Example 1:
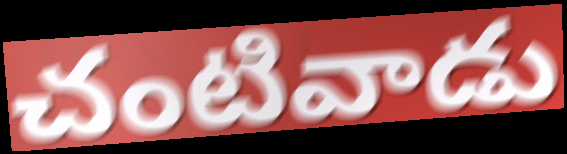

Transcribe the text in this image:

చంటివాడు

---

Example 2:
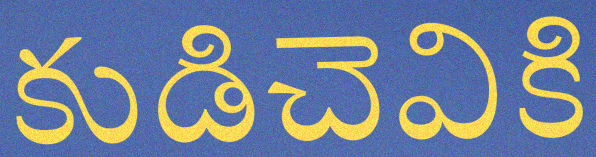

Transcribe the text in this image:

కుడిచెవికి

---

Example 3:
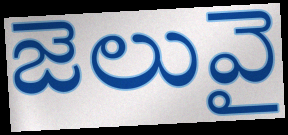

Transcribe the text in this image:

జెలువై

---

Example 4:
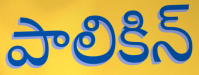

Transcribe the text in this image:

పాలికిన్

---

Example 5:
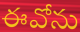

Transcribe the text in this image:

ఈవోను